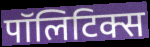
पॉलिटिक्स